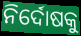
ନିର୍ଦୋଷକୁ